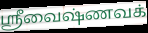
ஸ்ரீவைஷ்ணவக்